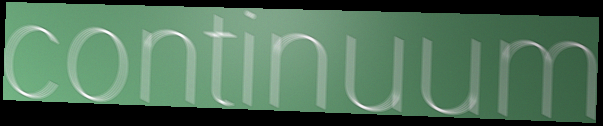
continuum